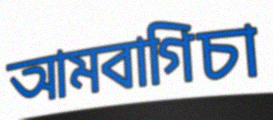
আমবাগিচা